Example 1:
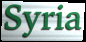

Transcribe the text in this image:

Syria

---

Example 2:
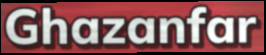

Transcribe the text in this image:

Ghazanfar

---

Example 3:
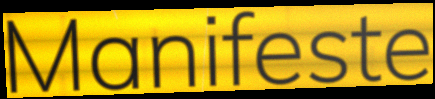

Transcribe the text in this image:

Manifeste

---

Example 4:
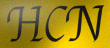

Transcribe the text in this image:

HCN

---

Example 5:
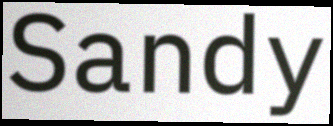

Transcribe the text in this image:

Sandy